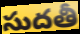
సుదతీ